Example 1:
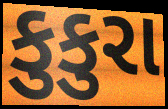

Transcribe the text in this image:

કુકુરા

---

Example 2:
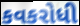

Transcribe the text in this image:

કવકરોધી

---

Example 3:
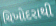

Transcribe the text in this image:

ચિખોદરાથી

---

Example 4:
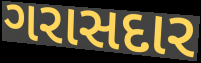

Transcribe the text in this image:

ગરાસદાર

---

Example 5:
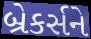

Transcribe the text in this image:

બ્રેકર્સને